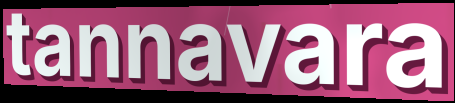
tannavara